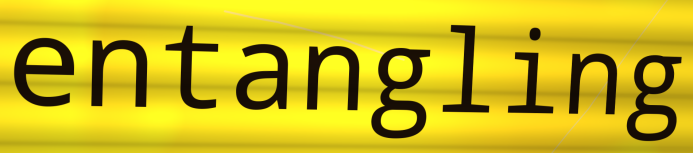
entangling